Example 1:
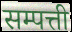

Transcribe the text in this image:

सम्पत्ती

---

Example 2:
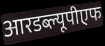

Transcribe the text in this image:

आरडब्ल्यूपीएफ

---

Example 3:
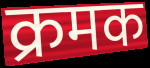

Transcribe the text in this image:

क्रमक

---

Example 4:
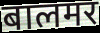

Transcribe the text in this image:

बालमर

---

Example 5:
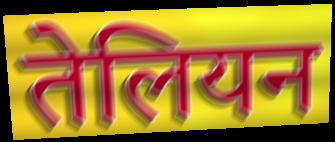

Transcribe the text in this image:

तेलियन